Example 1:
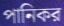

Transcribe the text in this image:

পানিকর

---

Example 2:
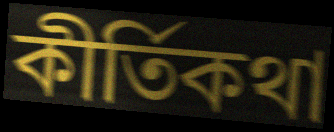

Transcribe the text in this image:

কীর্তিকথা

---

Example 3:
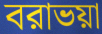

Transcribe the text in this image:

বরাভয়া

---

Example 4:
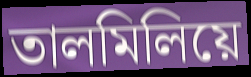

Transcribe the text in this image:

তালমিলিয়ে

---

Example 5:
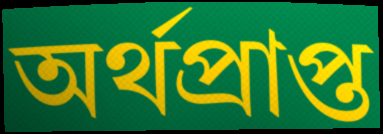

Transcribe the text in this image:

অর্থপ্রাপ্ত